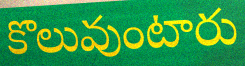
కొలువుంటారు